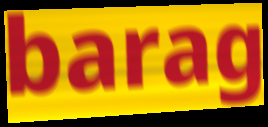
barag